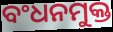
ବଂଧନମୁକ୍ତ